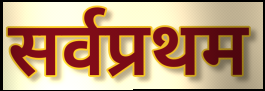
सर्वप्रथम